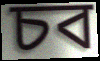
চব